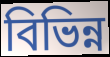
বিভিন্ন